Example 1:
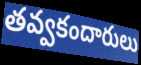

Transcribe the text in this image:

తవ్వకందారులు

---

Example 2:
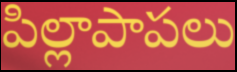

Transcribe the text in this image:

పిల్లాపాపలు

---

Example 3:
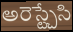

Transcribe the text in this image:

అరెస్ట్చేసి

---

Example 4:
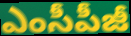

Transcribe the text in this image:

ఎంసీపీజీ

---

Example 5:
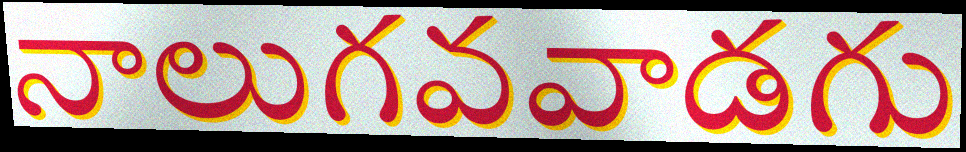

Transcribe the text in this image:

నాలుగవవాడగు